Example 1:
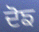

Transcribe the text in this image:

ਦੋਙ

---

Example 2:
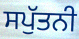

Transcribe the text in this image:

ਸਪੁੱਤਨੀ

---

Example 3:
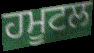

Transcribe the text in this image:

ਹਮੂਟਲ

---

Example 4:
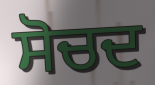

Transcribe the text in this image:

ਸੋਚਦ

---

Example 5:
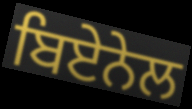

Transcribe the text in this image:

ਬਿਏਨੇਲ